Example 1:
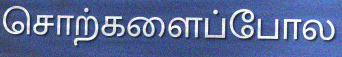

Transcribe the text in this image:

சொற்களைப்போல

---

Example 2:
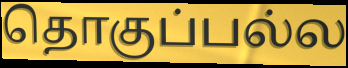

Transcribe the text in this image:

தொகுப்பல்ல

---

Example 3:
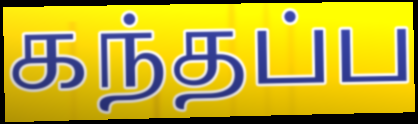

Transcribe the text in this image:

கந்தப்ப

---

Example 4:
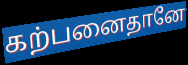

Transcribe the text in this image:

கற்பனைதானே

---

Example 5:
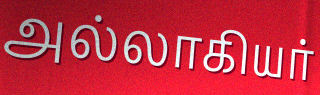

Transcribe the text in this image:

அல்லாகியர்